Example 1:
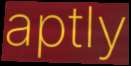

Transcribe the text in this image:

aptly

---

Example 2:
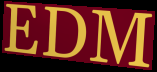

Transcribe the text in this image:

EDM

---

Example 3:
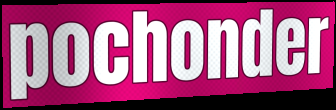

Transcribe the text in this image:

pochonder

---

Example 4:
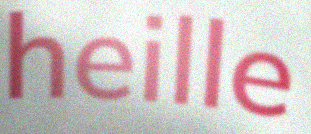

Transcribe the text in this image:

heille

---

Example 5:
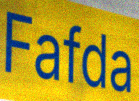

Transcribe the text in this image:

Fafda